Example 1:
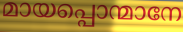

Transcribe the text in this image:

മായപ്പൊന്മാനേ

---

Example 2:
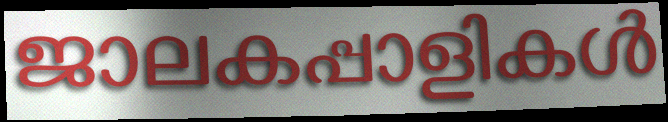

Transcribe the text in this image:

ജാലകപ്പാളികൾ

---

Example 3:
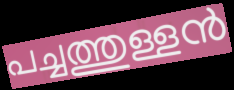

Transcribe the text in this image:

പച്ചത്തുള്ളൻ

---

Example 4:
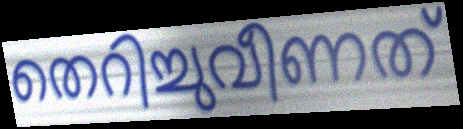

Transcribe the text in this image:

തെറിച്ചുവീണത്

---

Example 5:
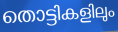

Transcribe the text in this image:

തൊട്ടികളിലും